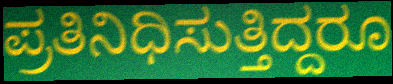
ಪ್ರತಿನಿಧಿಸುತ್ತಿದ್ದರೂ